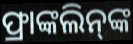
ଫ୍ରାଙ୍କଲିନ୍‌ଙ୍କ